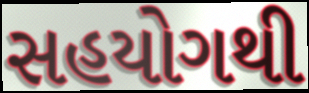
સહયોગથી